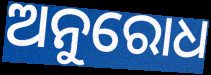
ଅନୁରୋଧ